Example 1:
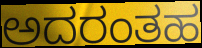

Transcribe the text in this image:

ಅದರಂತಹ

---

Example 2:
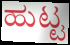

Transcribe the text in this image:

ಹುಟ್ಟ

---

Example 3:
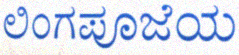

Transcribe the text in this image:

ಲಿಂಗಪೂಜೆಯ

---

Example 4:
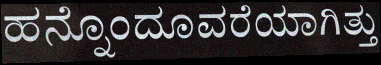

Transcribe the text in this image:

ಹನ್ನೊಂದೂವರೆಯಾಗಿತ್ತು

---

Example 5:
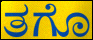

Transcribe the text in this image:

ತಗೊ